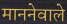
माननेवाले